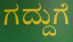
ಗದ್ದುಗೆ